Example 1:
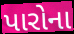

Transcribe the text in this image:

પારોના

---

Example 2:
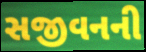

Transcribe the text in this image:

સજીવનની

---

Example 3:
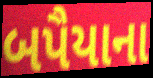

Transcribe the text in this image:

બપૈયાના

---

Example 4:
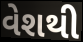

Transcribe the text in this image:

વેશથી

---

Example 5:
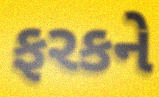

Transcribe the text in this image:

ફરકને